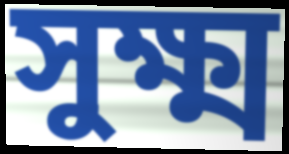
সুক্ষ্ম